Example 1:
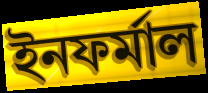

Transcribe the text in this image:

ইনফর্মাল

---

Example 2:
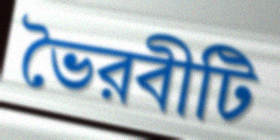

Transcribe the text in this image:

ভৈরবীটি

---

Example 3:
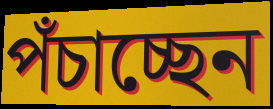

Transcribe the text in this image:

পঁচাচ্ছেন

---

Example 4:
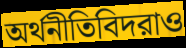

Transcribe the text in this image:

অর্থনীতিবিদরাও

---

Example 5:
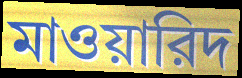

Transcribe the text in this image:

মাওয়ারিদ